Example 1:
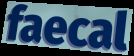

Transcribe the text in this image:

faecal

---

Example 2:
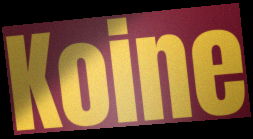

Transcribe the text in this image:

Koine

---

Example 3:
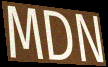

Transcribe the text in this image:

MDN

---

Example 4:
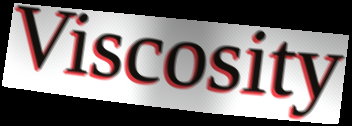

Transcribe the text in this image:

Viscosity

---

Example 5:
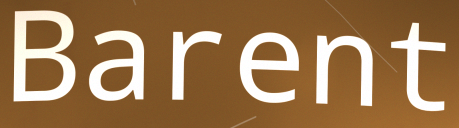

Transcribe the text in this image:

Barent